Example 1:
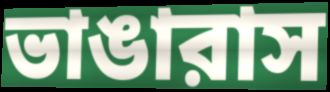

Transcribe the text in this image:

ভাঙারাস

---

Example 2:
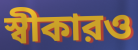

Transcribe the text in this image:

স্বীকারও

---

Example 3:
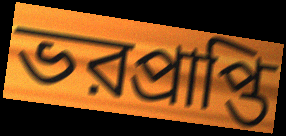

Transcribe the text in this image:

ভরপ্রাপ্তি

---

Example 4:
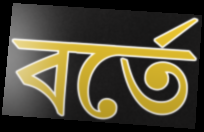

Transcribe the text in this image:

বর্তে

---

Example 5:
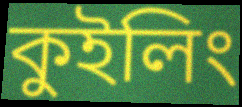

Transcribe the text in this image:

কুইলিং